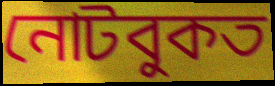
নোটবুকত